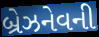
બ્રેઝનેવની